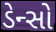
ડેન્સો